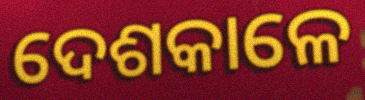
ଦେଶକାଳେ